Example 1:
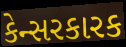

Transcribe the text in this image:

કેન્સરકારક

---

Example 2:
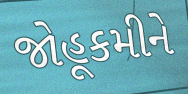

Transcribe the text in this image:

જોહૂકમીને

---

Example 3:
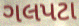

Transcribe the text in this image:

ગલપટા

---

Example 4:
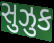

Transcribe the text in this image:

સુઝુક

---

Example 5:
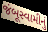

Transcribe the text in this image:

જંબૂસ્વામીનું